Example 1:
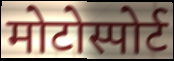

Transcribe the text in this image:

मोटोस्पोर्ट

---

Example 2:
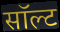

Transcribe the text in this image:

सॉल्ट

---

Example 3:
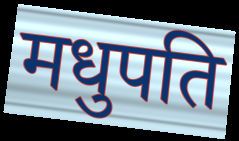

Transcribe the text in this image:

मधुपति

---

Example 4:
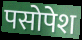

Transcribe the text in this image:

पसोपेश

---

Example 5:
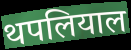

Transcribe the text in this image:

थपलियाल